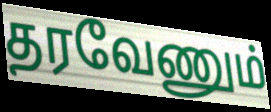
தரவேணும்